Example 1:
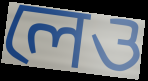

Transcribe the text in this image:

লেও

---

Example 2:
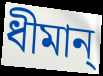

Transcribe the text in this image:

ধীমান্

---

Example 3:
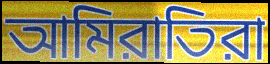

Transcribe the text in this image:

আমিরাতিরা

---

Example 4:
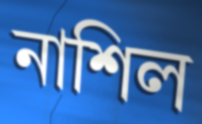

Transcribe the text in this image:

নাশিল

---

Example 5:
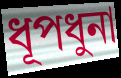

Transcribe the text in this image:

ধূপধুনা